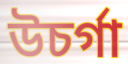
উচৰ্গা